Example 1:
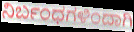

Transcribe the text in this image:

ನಿರ್ಬಂಧಗಳಿಂದಾಗಿ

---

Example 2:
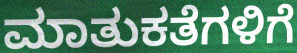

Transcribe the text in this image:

ಮಾತುಕತೆಗಳಿಗೆ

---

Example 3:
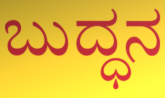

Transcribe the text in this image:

ಬುದ್ಧನ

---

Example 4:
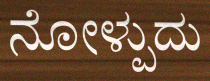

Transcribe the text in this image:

ನೋಳ್ಪುದು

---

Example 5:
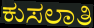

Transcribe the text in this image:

ಕುಸಲಾತಿ